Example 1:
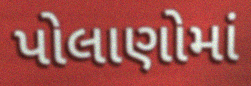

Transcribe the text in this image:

પોલાણોમાં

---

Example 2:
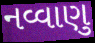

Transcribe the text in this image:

નવ્વાણુ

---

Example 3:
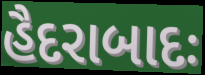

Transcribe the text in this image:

હૈદરાબાદઃ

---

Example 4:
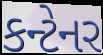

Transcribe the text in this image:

કન્ટેનર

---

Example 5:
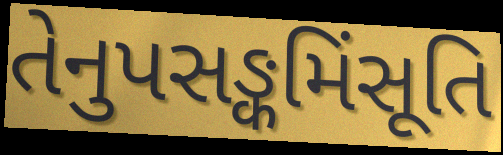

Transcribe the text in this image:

તેનુપસઙ્કમિંસૂતિ